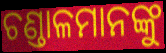
ଚଣ୍ଡାଳମାନଙ୍କୁ